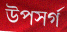
উপসৰ্গ